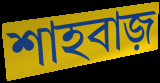
শাহবাজ়